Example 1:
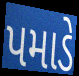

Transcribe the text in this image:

પમાડે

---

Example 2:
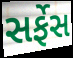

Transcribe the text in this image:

સર્ફેસ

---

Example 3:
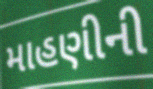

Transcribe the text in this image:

માહણીની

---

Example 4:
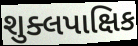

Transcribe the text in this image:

શુક્લપાક્ષિક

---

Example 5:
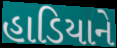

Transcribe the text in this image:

હાડિયાને